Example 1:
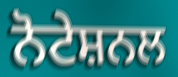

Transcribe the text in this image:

ਨੋਟੇਸ਼ਨਲ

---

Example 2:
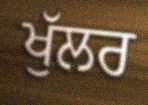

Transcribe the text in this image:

ਖੁੱਲਰ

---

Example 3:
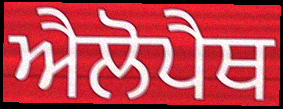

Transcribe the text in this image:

ਐਲੋਪੈਥ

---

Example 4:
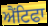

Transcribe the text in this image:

ਐਂਟਿਫਾ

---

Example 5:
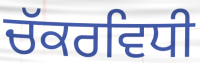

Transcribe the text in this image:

ਚੱਕਰਵਿਧੀ